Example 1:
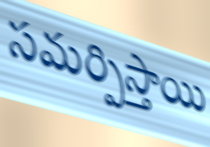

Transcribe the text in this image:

సమర్పిస్తాయి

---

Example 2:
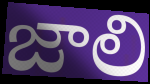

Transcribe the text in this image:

జాలి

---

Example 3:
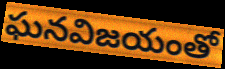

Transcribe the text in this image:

ఘనవిజయంతో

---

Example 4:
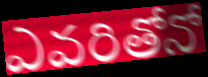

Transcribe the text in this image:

ఎవరితోనో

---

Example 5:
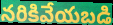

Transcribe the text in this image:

నరికివేయబడి